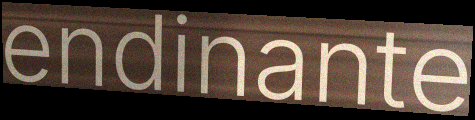
endinante